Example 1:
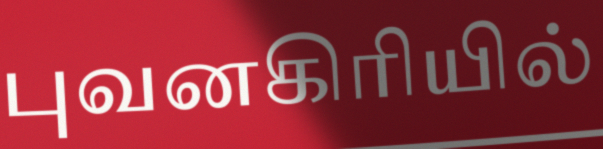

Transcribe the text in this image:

புவனகிரியில்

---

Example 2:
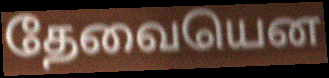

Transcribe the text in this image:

தேவையென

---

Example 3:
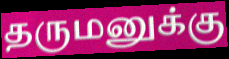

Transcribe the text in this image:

தருமனுக்கு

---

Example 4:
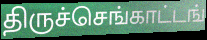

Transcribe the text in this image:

திருச்செங்காட்டங்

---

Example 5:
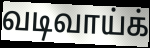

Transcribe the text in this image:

வடிவாய்க்